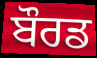
ਬੌਰਡ